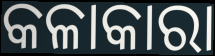
କଳାକାରା